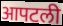
आपटली